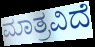
ಮಾತ್ರವಿದೆ